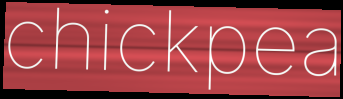
chickpea